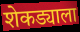
शेकड्याला